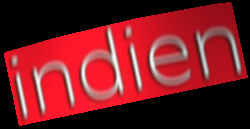
indien